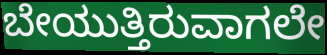
ಬೇಯುತ್ತಿರುವಾಗಲೇ